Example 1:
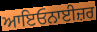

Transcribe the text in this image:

ਆਇਓਨਾਈਜ਼ਰ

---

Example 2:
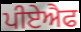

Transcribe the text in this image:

ਪੀਏਐਫ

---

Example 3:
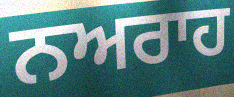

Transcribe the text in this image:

ਨਅਰਾਹ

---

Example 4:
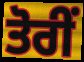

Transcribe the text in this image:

ਤੋਰੀਂ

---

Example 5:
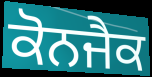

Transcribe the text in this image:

ਕੋਨਜੈਕ